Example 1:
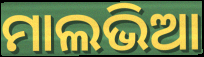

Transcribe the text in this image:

ମାଲଭିଆ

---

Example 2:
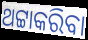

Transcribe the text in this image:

ଥଟ୍ଟାକରିବା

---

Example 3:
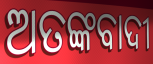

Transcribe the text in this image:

ଅତଙ୍କବାଦୀ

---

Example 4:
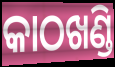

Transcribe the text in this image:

କାଠଖଣ୍ଡି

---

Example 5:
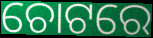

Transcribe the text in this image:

ଚୋଟରେ